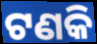
ଟଣକି